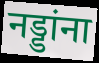
नड्डांना